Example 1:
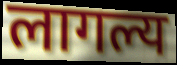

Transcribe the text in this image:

लागल्य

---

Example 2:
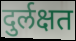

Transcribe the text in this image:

दुर्लक्षत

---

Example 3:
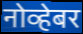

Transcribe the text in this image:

नोव्हेबर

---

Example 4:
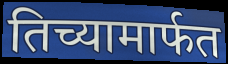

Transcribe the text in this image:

तिच्यामार्फत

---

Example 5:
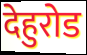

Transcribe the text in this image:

देहुरोड